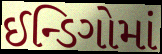
ઈન્ડિગોમાં